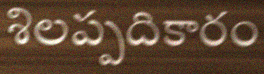
శిలప్పదికారం